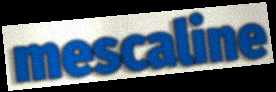
mescaline